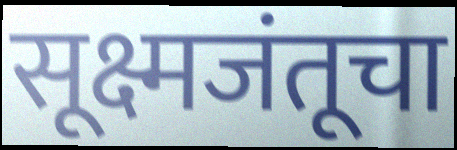
सूक्ष्मजंतूचा